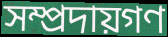
সম্প্রদায়গণ